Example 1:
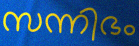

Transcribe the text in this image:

സന്നിഭം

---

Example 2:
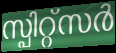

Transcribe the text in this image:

സ്പിറ്റ്സർ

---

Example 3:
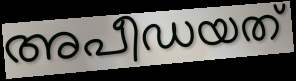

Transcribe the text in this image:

അപീഡയത്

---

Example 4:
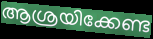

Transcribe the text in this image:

ആശ്രയിക്കേണ്ട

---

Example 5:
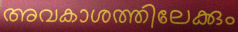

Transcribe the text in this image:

അവകാശത്തിലേക്കും